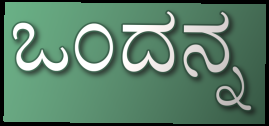
ಒಂದನ್ನ